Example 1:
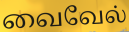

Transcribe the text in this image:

வைவேல்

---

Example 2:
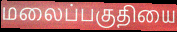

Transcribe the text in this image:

மலைப்பகுதியை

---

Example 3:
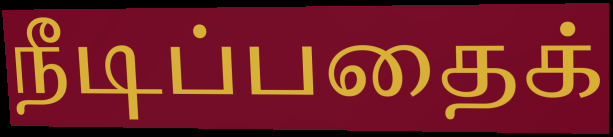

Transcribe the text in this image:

நீடிப்பதைக்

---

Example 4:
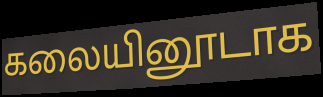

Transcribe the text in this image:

கலையினூடாக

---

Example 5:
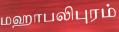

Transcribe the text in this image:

மஹாபலிபுரம்